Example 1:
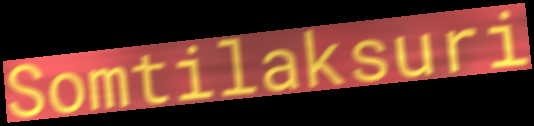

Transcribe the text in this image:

Somtilaksuri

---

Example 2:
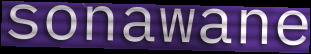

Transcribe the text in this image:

sonawane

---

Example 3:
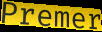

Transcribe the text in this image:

Premer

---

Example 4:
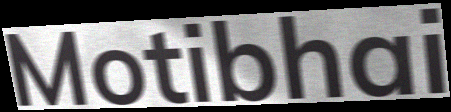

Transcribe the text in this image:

Motibhai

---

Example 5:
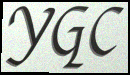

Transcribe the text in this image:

YGC